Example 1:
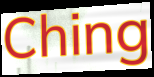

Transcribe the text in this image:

Ching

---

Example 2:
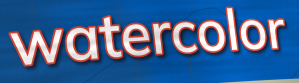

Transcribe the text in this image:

watercolor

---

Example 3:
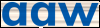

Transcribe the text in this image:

aaw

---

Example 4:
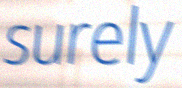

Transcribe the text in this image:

surely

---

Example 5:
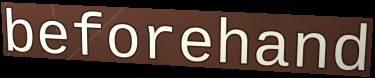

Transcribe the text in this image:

beforehand